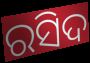
ରସିଦ